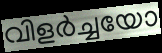
വിളർച്ചയോ